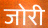
जोरी